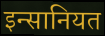
इन्सानियत